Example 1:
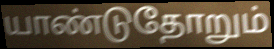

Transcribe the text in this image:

யாண்டுதோறும்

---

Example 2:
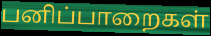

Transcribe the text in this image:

பனிப்பாறைகள்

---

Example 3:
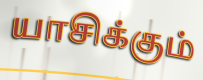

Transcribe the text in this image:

யாசிக்கும்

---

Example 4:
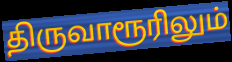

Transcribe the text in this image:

திருவாரூரிலும்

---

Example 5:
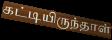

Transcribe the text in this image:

கட்டியிருந்தாள்